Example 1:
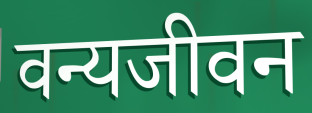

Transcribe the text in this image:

वन्यजीवन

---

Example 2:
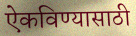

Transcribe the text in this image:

ऐकविण्यासाठी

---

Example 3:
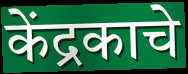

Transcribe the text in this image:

केंद्रकाचे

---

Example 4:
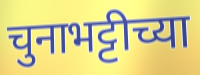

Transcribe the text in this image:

चुनाभट्टीच्या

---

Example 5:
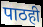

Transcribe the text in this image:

पाठही